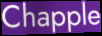
Chapple